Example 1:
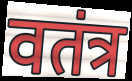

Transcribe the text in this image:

वतंत्र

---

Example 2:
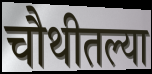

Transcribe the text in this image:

चौथीतल्या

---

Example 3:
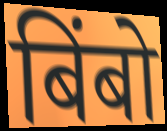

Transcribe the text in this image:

बिंबो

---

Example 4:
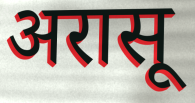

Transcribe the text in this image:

अरासू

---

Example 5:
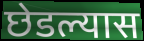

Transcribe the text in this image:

छेडल्यास